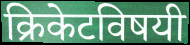
क्रिकेटविषयी